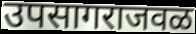
उपसागराजवळ